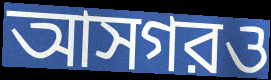
আসগরও